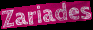
Zariades